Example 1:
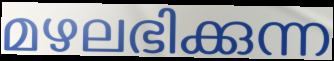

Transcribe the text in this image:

മഴലഭിക്കുന്ന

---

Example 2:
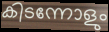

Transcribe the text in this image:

കിടന്നോളും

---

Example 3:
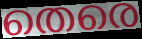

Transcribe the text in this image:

തെരെ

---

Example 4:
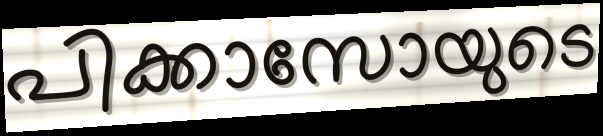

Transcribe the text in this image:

പിക്കാസോയുടെ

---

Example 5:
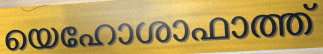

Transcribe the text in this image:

യെഹോശാഫാത്ത്